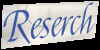
Reserch